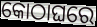
କୋଠାଘରେ